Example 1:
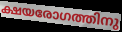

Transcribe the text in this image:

ക്ഷയരോഗത്തിനു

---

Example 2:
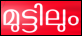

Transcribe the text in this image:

മുട്ടിലും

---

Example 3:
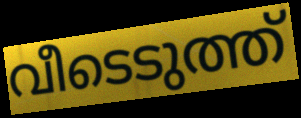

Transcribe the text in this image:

വീടെടുത്ത്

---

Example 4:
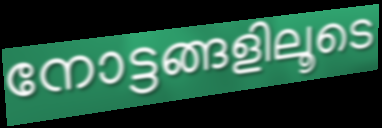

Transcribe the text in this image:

നോട്ടങ്ങളിലൂടെ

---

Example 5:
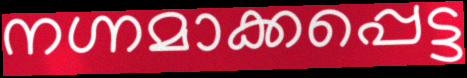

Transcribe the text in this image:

നഗ്നമാക്കപ്പെട്ട